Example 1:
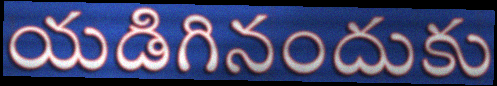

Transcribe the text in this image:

యడిగినందుకు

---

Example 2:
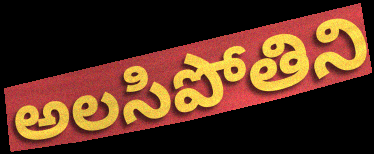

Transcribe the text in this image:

అలసిపోతిని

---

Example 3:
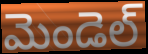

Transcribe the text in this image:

మెండెల్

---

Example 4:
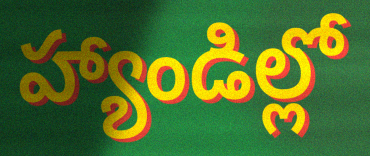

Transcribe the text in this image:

హ్యాండిల్లో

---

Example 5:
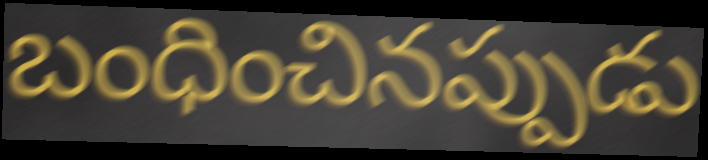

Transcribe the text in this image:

బంధించినప్పుడు